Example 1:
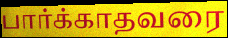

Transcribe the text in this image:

பார்க்காதவரை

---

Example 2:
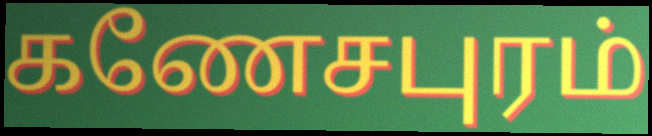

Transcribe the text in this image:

கணேசபுரம்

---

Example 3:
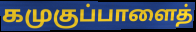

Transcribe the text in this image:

கமுகுப்பாளைத்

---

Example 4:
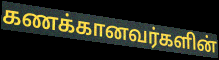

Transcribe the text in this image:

கணக்கானவர்களின்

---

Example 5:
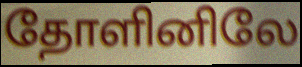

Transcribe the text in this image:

தோளினிலே